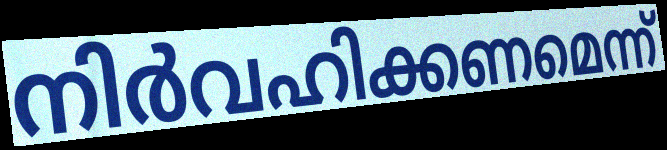
നിർവഹിക്കണമെന്ന്